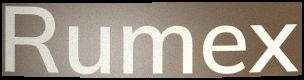
Rumex